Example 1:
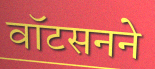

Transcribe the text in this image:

वॉटसनने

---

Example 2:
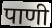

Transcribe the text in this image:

पाणी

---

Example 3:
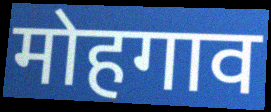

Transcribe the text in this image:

मोहगाव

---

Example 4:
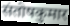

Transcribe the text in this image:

संतोषकुमार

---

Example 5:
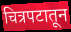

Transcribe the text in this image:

चित्रपटातून